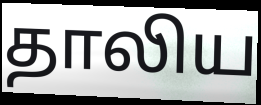
தாலிய